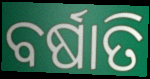
ବର୍ଷାତି